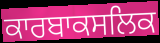
ਕਾਰਬਾਕਸਲਿਕ